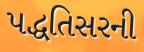
પદ્ધતિસરની